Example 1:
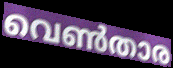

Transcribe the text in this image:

വെൺതാര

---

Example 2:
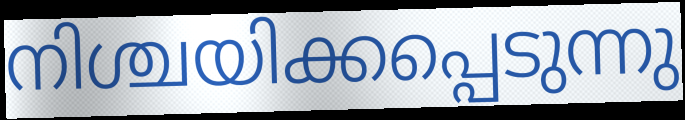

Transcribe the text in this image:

നിശ്ചയിക്കപ്പെടുന്നു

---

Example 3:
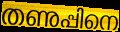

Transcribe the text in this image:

തണുപ്പിനെ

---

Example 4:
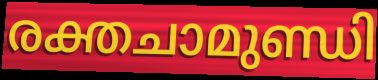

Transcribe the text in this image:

രക്തചാമുണ്ഡി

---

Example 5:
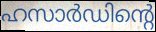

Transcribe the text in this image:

ഹസാർഡിന്റെ